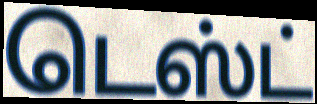
டெஸ்ட்